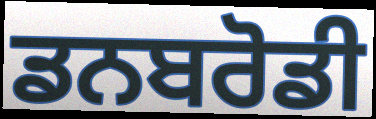
ਡਨਬਰੋਡੀ